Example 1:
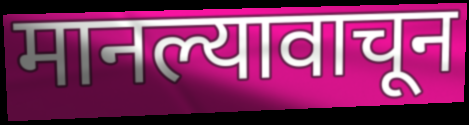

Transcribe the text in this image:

मानल्यावाचून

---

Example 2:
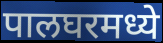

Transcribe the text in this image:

पालघरमध्ये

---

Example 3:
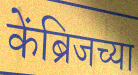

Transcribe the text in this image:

केंब्रिजच्या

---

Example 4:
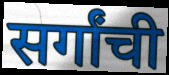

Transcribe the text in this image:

सर्गांची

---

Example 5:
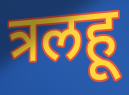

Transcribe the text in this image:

त्रलहू